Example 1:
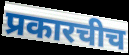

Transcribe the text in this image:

प्रकारचीच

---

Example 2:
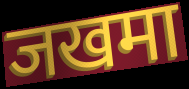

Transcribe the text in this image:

जखमा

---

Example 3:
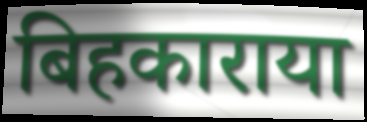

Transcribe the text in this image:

बिहकाराया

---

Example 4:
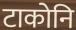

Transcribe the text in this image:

टाकोनि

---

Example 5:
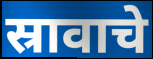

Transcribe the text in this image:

स्रावाचे